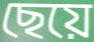
ছেয়ে